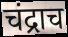
चंद्राच